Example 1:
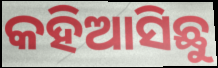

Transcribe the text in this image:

କହିଆସିଛୁ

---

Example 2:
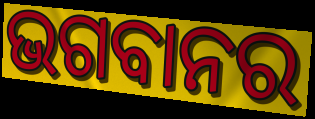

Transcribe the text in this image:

ଭଗବାନର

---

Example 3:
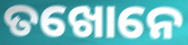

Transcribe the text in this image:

ତଖୋନେ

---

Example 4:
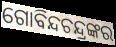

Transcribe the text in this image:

ଗୋବିନ୍ଦଚନ୍ଦ୍ରଙ୍କର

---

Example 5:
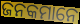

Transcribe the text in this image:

ଜନକମାନେ